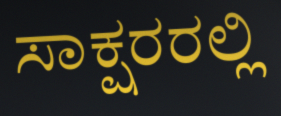
ಸಾಕ್ಷರರಲ್ಲಿ